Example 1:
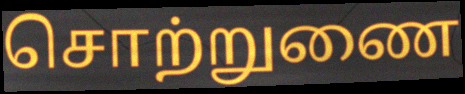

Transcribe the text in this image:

சொற்றுணை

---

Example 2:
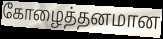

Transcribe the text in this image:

கோழைத்தனமான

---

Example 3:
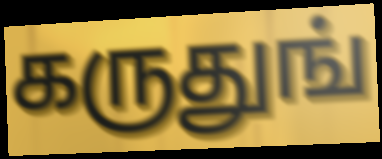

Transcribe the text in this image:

கருதுங்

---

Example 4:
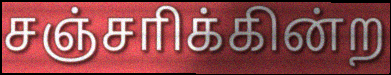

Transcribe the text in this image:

சஞ்சரிக்கின்ற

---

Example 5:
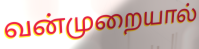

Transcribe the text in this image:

வன்முறையால்